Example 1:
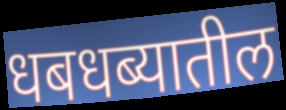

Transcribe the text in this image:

धबधब्यातील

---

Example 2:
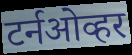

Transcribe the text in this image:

टर्नओव्हर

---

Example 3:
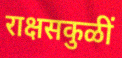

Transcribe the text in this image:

राक्षसकुळीं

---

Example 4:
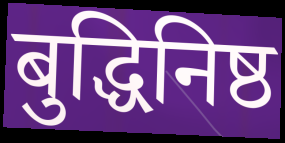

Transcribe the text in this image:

बुद्धिनिष्ठ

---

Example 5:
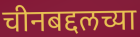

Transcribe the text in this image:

चीनबद्दलच्या